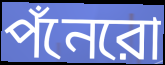
পঁনেরো